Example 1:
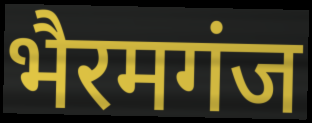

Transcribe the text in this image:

भैरमगंज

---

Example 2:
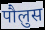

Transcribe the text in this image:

पौलुस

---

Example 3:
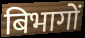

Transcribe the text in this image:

बिभागों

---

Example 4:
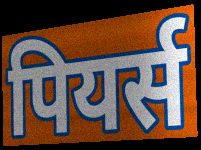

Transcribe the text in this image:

पियर्स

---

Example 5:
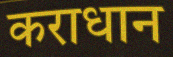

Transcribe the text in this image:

कराधान